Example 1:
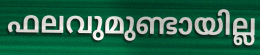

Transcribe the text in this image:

ഫലവുമുണ്ടായില്ല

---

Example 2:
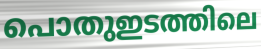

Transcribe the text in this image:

പൊതുഇടത്തിലെ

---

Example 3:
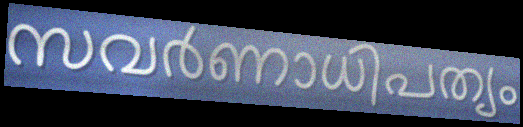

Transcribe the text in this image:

സവർണാധിപത്യം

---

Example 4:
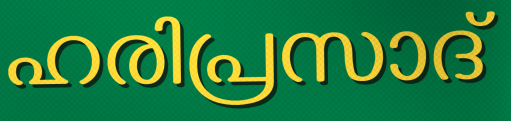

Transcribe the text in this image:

ഹരിപ്രസാദ്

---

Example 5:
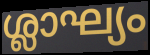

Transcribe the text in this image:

ശ്ലാഘ്യം